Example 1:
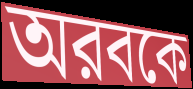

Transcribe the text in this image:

অরবকে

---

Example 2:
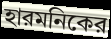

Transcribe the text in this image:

হারমনিকের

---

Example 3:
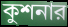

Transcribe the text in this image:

কুশনার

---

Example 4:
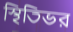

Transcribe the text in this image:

স্থিতিভর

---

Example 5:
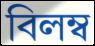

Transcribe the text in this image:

বিলম্ব